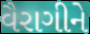
વૈરાગીને